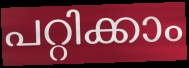
പറ്റിക്കാം